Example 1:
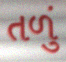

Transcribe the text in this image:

તળું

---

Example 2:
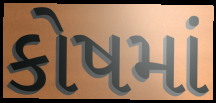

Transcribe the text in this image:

કોષમાં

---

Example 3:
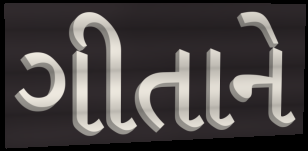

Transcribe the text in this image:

ગીતાને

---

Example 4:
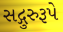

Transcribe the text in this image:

સદ્ગુરુરૂપે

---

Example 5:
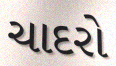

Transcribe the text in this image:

ચાદરો